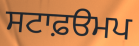
ਸਟਾਫ਼ੳਮਪ